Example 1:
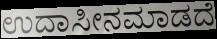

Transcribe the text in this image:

ಉದಾಸೀನಮಾಡದೆ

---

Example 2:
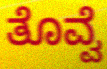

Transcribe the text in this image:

ತೊವ್ವೆ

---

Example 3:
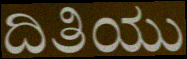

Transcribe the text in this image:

ದಿತಿಯು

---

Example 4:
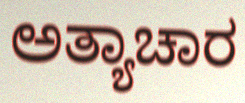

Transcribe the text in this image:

ಅತ್ಯಾಚಾರ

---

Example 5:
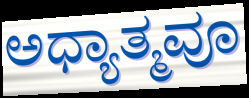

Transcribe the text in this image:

ಅಧ್ಯಾತ್ಮವೂ